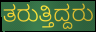
ತರುತ್ತಿದ್ದರು